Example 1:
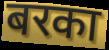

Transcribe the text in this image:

बरका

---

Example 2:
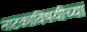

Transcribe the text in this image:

नाटकाविषयीच्या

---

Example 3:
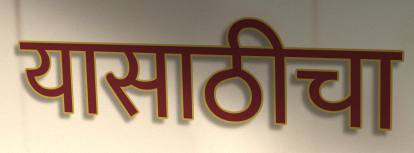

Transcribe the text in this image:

यासाठीचा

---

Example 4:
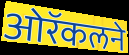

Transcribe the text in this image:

ओरॅकलने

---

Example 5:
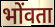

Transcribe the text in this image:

भोंवता